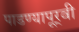
पाडण्यापूर्वी